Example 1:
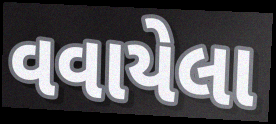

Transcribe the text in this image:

વવાયેલા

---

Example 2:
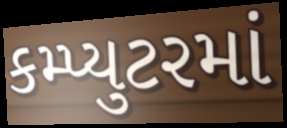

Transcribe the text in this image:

કમ્પ્યુટરમાં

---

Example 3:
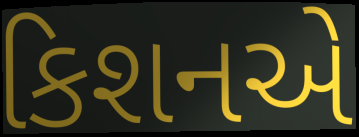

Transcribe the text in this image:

કિશનએ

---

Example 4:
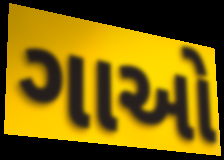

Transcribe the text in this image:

ગાઓ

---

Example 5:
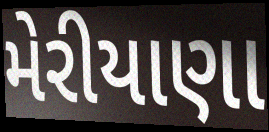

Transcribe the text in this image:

મેરીયાણા